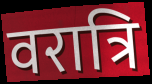
वरात्रि